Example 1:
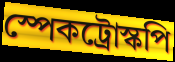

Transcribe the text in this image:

স্পেকট্রোস্কপি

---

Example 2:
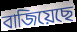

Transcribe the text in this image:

বাজিয়েছে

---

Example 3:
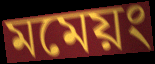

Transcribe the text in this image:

মমেয়ং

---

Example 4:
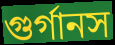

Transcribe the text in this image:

গুর্গানস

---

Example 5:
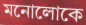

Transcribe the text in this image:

মনোলোকে